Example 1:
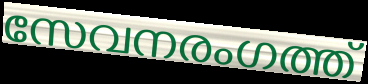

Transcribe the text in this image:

സേവനരംഗത്ത്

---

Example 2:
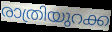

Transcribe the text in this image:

രാത്രിയുറക്ക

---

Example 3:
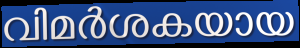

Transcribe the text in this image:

വിമർശകയായ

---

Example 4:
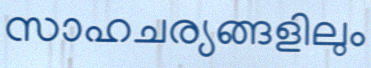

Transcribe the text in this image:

സാഹചര്യങ്ങളിലും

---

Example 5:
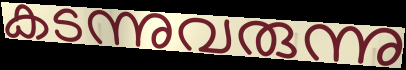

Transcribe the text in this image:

കടന്നുവരുന്നു